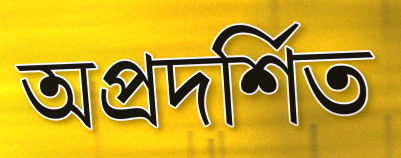
অপ্রদর্শিত